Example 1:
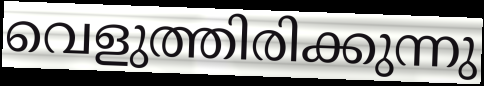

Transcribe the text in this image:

വെളുത്തിരിക്കുന്നു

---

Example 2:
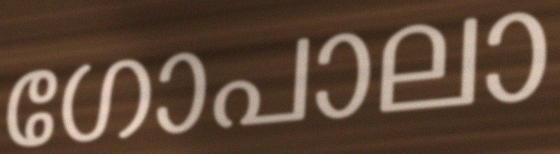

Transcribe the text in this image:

ഗോപാലാ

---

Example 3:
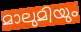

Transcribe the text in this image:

മാലുമിയും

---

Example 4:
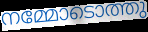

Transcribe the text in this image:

നമ്മോടൊത്തു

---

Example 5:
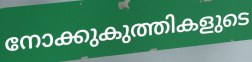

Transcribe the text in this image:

നോക്കുകുത്തികളുടെ